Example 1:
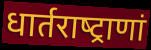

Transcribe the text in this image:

धार्तराष्ट्राणां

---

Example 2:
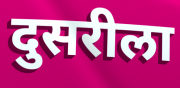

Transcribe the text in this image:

दुसरीला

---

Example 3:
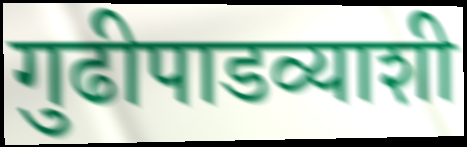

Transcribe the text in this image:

गुढीपाडव्याशी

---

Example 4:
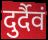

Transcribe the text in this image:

दुर्दैवं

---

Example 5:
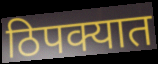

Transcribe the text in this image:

ठिपक्यात